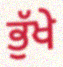
ਭੁੱਖੇ